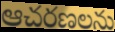
ఆచరణలను